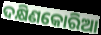
ଦକ୍ଷିଣକୋରିଆ